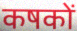
कषकों